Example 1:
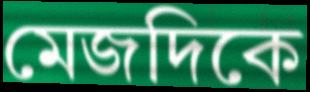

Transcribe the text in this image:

মেজদিকে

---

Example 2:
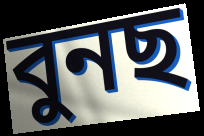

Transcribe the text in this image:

বুনছ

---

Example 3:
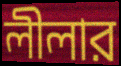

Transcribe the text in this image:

লীলার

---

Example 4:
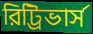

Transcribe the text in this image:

রিট্রিভার্স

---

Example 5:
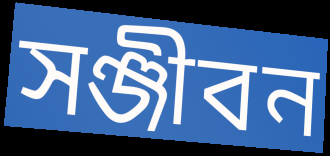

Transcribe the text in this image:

সঞ্জীবন